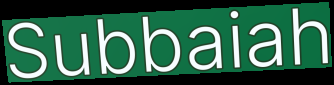
Subbaiah